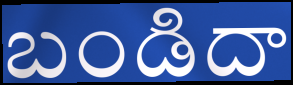
బండిదా